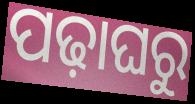
ପଢ଼ାଘରୁ